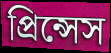
প্রিন্সেস